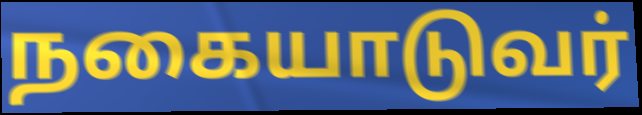
நகையாடுவர்